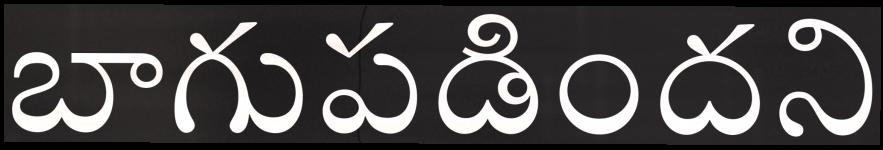
బాగుపడిందని